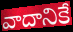
వాదానికే